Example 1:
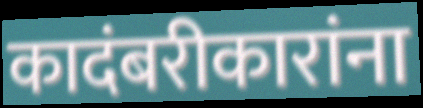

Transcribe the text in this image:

कादंबरीकारांना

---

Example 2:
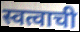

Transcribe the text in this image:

स्वत्वाची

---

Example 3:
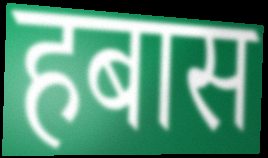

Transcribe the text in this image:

हबास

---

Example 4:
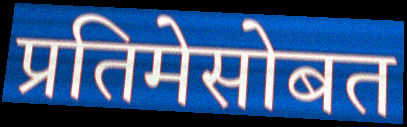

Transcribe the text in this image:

प्रतिमेसोबत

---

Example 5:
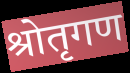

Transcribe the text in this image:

श्रोतृगण